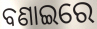
ବଣାଇରେ